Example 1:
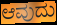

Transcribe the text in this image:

ಆವುದು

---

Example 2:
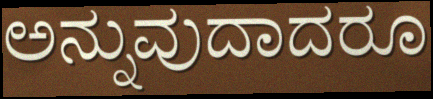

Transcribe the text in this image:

ಅನ್ನುವುದಾದರೂ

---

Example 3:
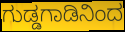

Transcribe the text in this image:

ಗುಡ್ಡಗಾಡಿನಿಂದ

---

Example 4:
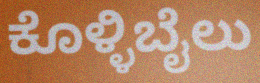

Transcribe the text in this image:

ಕೊಳ್ಳಿಬೈಲು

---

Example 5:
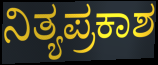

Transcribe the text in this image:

ನಿತ್ಯಪ್ರಕಾಶ